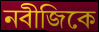
নবীজিকে